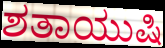
ಶತಾಯುಷಿ